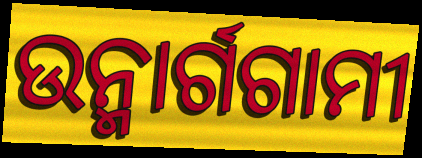
ଉନ୍ମାର୍ଗଗାମୀ